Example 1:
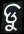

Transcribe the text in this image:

ଡୁ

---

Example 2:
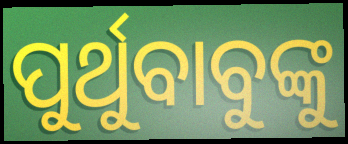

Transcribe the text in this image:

ପୁର୍ଥୁବାବୁଙ୍କୁ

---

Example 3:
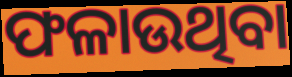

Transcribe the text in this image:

ଫଳାଉଥିବା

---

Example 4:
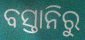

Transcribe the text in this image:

ବସ୍ତାନିରୁ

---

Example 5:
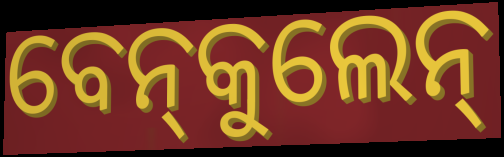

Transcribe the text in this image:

ବେନ୍‍କୁଲେନ୍